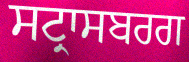
ਸਟ੍ਰਾਸਬਰਗ